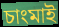
চাংমাই